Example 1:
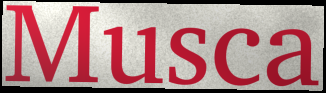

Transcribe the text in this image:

Musca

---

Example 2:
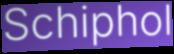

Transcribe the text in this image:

Schiphol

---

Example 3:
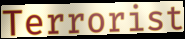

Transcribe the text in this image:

Terrorist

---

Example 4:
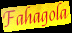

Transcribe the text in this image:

Fahagola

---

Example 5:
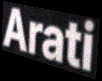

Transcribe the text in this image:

Arati